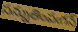
సన్నుతింపఁగన్